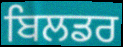
ਬਿਲਡਰ